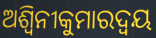
ଅଶ୍ୱିନୀକୁମାରଦ୍ୱୟ